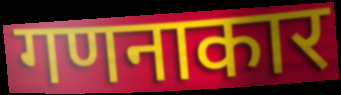
गणनाकार